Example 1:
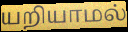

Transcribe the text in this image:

யறியாமல்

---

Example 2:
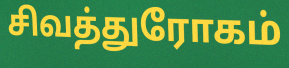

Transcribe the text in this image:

சிவத்துரோகம்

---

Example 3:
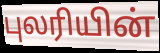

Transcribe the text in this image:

புலரியின்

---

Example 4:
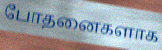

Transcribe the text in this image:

போதனைகளாக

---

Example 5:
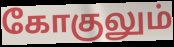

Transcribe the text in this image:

கோகுலும்